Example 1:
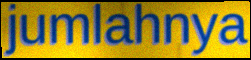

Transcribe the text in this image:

jumlahnya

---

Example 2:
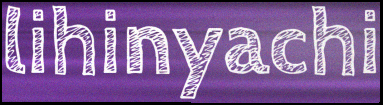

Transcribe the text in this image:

lihinyachi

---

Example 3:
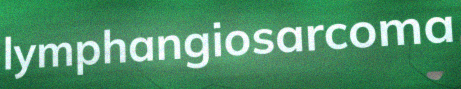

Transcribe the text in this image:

lymphangiosarcoma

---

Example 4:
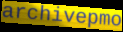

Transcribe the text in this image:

archivepmo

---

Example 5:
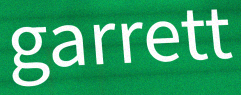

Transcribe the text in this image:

garrett